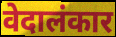
वेदालंकार